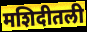
मशिदीतली